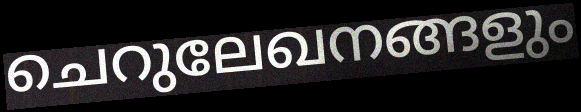
ചെറുലേഖനങ്ങളും